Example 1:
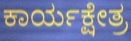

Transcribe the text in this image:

ಕಾರ್ಯಕ್ಷೇತ್ರ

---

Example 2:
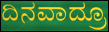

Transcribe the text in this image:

ದಿನವಾದ್ರೂ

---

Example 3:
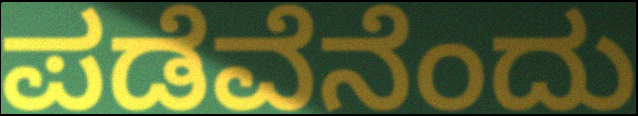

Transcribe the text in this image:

ಪಡೆವೆನೆಂದು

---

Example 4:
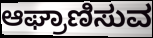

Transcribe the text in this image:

ಆಘ್ರಾಣಿಸುವ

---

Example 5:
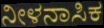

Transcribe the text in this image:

ನೀಳನಾಸಿಕ